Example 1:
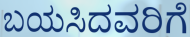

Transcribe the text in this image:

ಬಯಸಿದವರಿಗೆ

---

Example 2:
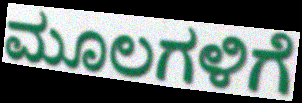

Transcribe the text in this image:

ಮೂಲಗಳಿಗೆ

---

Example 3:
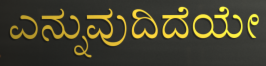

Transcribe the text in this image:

ಎನ್ನುವುದಿದೆಯೇ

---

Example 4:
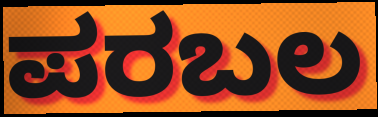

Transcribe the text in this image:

ಪರಬಲ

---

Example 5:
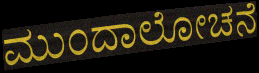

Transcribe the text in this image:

ಮುಂದಾಲೋಚನೆ